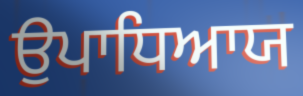
ਉਪਾਧਿਆਯ